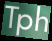
Tph